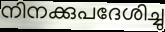
നിനക്കുപദേശിച്ചു